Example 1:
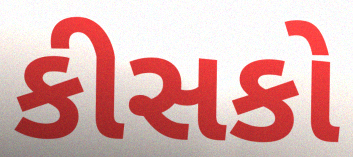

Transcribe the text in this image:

કીસકો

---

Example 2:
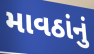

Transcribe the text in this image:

માવઠાંનું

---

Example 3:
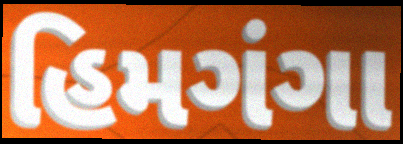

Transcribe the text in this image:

હિમગંગા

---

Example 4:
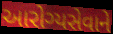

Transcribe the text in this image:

આરોગ્યસેવાને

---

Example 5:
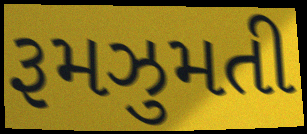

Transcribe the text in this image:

રૂમઝુમતી